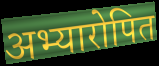
अभ्यारोपित